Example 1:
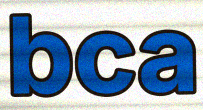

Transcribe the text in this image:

bca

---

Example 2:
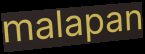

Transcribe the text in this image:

malapan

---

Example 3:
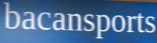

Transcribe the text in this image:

bacansports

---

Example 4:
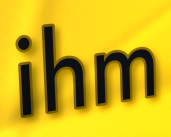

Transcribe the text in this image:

ihm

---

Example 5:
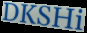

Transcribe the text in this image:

DKSHi